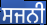
ਸਜਨੀ